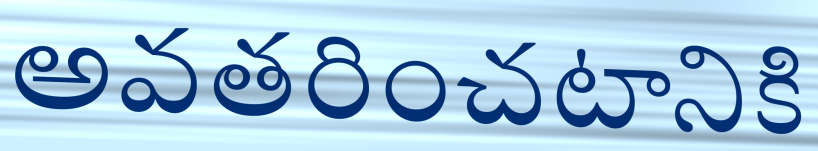
అవతరించటానికి